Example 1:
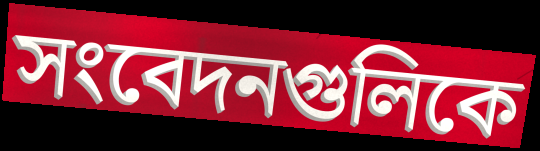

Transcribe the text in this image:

সংবেদনগুলিকে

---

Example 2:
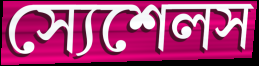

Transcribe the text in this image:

স্যেশেলস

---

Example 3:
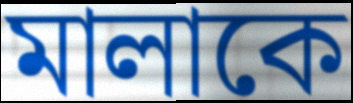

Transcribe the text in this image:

মালাকে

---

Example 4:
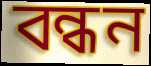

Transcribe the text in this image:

বন্ধন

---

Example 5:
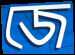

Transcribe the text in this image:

জে